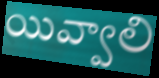
యివ్వాలి